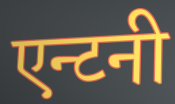
एन्टनी